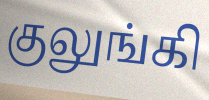
குலுங்கி